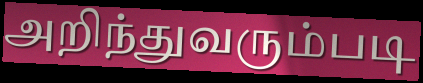
அறிந்துவரும்படி